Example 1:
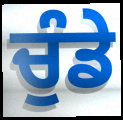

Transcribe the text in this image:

ਚੁੰਡੇ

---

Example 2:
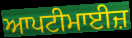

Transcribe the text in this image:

ਆਪਟੀਮਾਈਜ਼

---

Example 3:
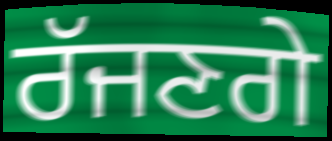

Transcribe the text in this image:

ਰੱਜਣਗੇ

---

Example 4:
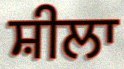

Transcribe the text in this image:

ਸ਼ੀਲਾ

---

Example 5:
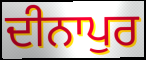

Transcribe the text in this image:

ਦੀਨਾਪੁਰ